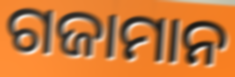
ଗଜାମାନ